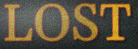
LOST